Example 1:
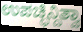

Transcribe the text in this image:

ಉಪಚ್ಛಿನ್ದಿತ್ವಾ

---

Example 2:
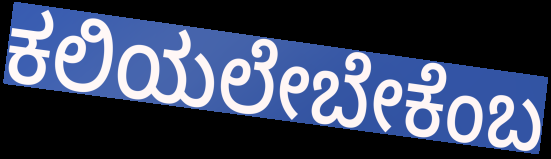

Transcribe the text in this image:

ಕಲಿಯಲೇಬೇಕೆಂಬ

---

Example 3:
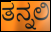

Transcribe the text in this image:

ತನ್ನಲಿ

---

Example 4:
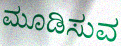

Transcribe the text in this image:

ಮೂಡಿಸುವ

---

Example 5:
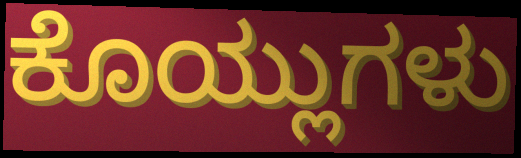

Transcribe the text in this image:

ಕೊಯ್ಲುಗಳು